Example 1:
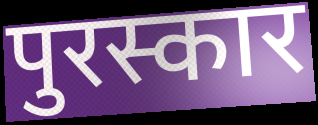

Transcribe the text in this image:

पुरस्कार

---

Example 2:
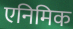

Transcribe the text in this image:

एनिमिक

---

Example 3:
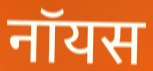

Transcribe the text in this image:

नॉयस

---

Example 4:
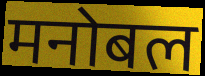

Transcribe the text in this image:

मनोबल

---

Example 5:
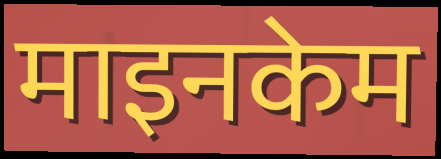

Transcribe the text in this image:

माइनकेम